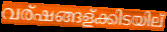
വര്ഷങ്ങള്ക്കിടയില്